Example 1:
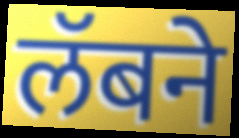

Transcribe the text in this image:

लॅबने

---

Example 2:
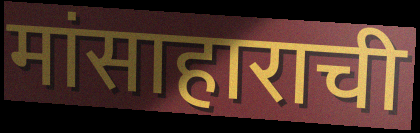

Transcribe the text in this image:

मांसाहाराची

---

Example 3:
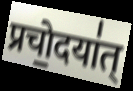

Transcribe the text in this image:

प्रचो॒दया॑त्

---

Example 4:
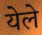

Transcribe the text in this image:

येले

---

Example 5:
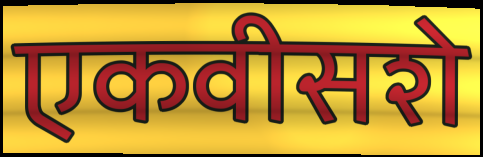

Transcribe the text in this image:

एकवीसशे